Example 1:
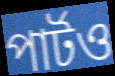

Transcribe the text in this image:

পার্টও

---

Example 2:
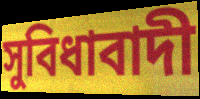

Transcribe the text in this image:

সুবিধাবাদী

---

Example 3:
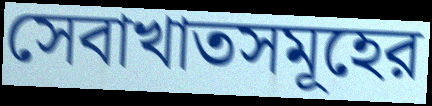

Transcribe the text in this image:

সেবাখাতসমূহের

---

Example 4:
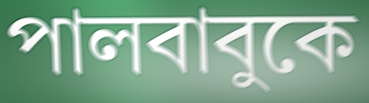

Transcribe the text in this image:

পালবাবুকে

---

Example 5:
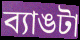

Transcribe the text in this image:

ব্যাঙটা